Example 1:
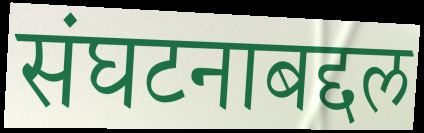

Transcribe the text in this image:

संघटनाबद्दल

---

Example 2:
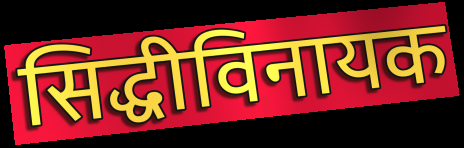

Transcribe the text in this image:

सिद्धीविनायक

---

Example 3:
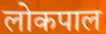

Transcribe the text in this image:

लोकपाल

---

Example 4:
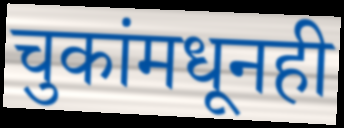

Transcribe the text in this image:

चुकांमधूनही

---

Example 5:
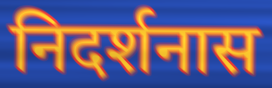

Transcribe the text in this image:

निदर्शनास